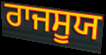
ਰਾਜਸੂਯ